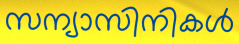
സന്യാസിനികൾ